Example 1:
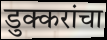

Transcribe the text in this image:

डुक्करांचा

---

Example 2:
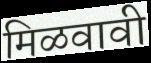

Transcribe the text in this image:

मिळवावी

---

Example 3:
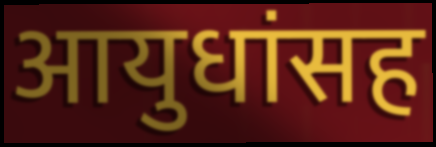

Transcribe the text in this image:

आयुधांसह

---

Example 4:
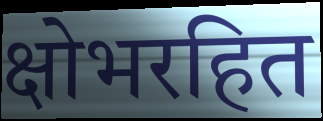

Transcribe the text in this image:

क्षोभरहित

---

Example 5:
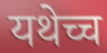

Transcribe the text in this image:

यथेच्च